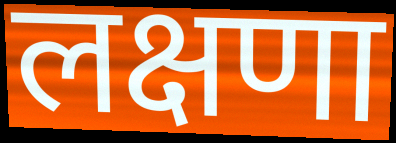
लक्षणा